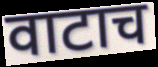
वाटाच